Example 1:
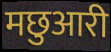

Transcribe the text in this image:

मछुआरी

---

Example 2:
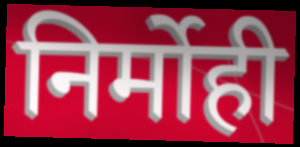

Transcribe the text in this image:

निर्मोही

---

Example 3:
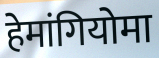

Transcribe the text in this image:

हेमांगियोमा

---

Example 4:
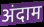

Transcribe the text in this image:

अंदाम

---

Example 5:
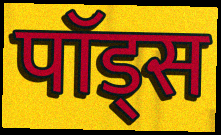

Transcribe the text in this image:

पॉड्स